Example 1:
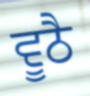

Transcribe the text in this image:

ਵੂਠੈ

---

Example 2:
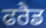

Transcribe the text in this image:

ਫਰੈਡ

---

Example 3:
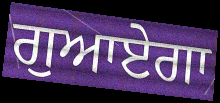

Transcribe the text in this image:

ਗੁਆਏਗਾ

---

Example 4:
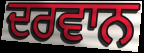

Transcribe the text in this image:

ਦਰਵਾਨ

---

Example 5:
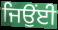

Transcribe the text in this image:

ਜਿਉਂਈ